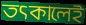
তৎকালেই